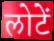
लोटें